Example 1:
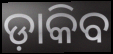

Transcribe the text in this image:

ଡ଼ାକିବ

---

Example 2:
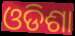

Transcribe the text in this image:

ଓଡିଶା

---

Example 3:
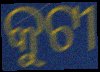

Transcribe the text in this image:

କୁଟୀ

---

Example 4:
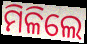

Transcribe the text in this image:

ମିଳିଲେ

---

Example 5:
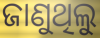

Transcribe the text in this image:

ଜାଣୁଥିଲୁ